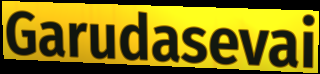
Garudasevai